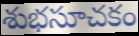
శుభసూచకం